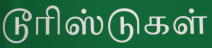
டூரிஸ்டுகள்